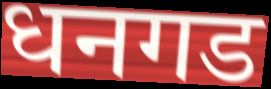
धनगड